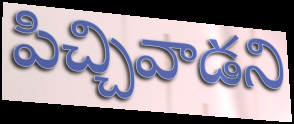
పిచ్చివాడని